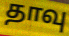
தாவு